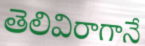
తెలివిరాగానే